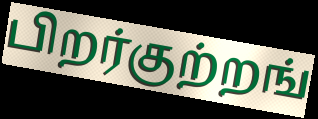
பிறர்குற்றங்